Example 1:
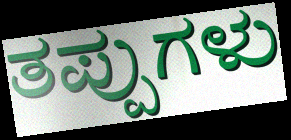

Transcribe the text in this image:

ತಪ್ಪುಗಳು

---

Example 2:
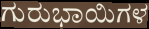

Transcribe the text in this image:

ಗುರುಭಾಯಿಗಳ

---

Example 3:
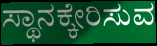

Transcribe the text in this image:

ಸ್ಥಾನಕ್ಕೇರಿಸುವ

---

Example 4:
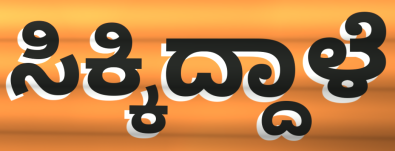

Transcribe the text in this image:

ಸಿಕ್ಕಿದ್ದಾಳೆ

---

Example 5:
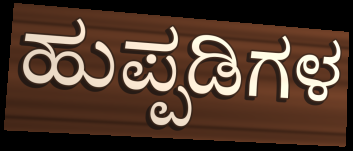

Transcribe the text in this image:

ಹುಪ್ಪಡಿಗಳ